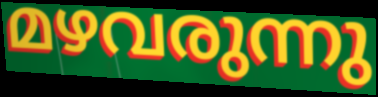
മഴവരുന്നു